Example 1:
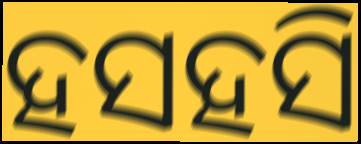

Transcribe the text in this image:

ହସହସି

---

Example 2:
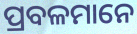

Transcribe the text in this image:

ପ୍ରବଳମାନେ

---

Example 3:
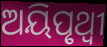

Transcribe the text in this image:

ଅୟିପୃଥ୍ୱୀ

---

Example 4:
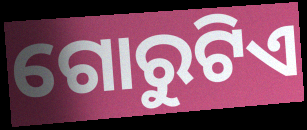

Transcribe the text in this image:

ଗୋରୁଟିଏ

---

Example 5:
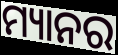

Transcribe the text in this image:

ମ୍ୟାନର